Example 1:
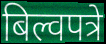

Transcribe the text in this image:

बिल्वपत्रे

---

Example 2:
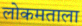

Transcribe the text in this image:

लोकमताला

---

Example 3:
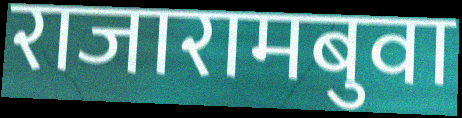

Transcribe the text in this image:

राजारामबुवा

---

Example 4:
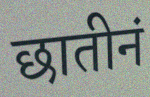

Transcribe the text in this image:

छातीनं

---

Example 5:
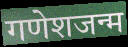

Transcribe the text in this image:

गणेशजन्म